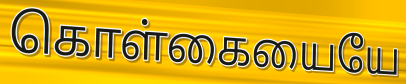
கொள்கையையே